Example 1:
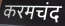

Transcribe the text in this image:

करमचंद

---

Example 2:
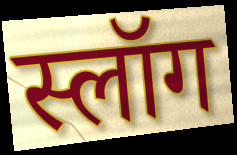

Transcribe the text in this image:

स्लॉग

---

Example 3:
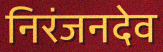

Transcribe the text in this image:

निरंजनदेव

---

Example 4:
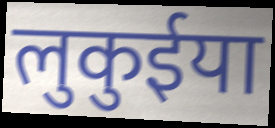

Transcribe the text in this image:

लुकुईया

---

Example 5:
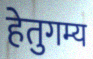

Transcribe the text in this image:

हेतुगम्य